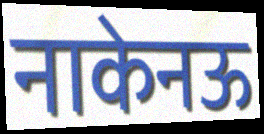
नाकेनऊ